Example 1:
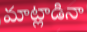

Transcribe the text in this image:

మాట్లాడినా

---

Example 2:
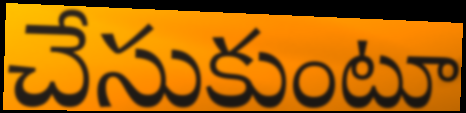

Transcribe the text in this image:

చేసుకుంటూ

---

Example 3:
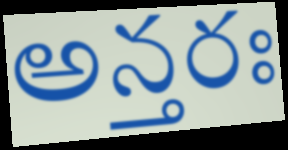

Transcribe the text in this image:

అన్తరః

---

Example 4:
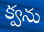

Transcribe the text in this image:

క్వను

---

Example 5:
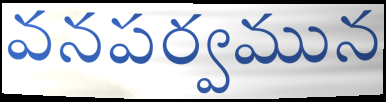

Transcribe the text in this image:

వనపర్వమున